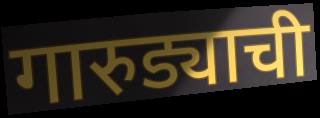
गारुड्याची